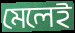
মেলেই